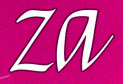
za